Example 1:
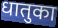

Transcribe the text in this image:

धातुका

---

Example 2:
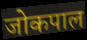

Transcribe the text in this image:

जोकपाल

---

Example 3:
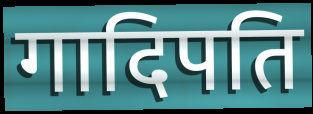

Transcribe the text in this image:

गादिपति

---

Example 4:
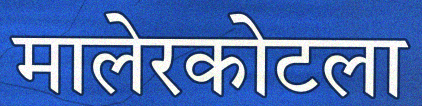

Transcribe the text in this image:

मालेरकोटला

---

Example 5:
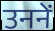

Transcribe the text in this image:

उननें